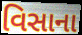
વિસાના